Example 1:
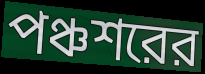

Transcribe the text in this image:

পঞ্চশরের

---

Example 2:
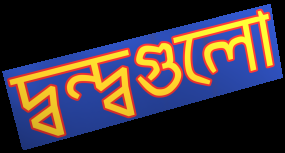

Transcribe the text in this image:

দ্বন্দ্বগুলো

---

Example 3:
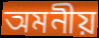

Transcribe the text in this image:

অমনীয়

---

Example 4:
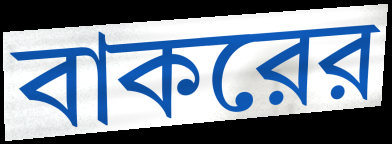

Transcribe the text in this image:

বাকরের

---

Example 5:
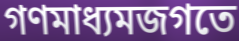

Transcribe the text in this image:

গণমাধ্যমজগতে